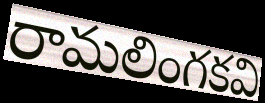
రామలింగకవి